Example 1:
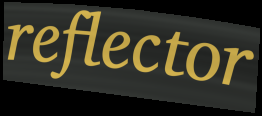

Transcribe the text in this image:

reflector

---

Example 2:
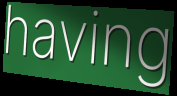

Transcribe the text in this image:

having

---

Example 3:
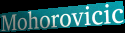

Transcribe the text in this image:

Mohorovicic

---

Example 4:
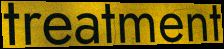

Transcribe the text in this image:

treatment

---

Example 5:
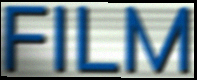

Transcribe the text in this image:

FILM